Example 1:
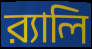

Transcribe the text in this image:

র‍্যালি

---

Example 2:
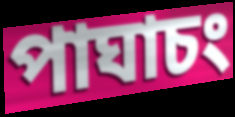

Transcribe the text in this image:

পাঘাচং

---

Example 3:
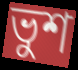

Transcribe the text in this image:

ভুশ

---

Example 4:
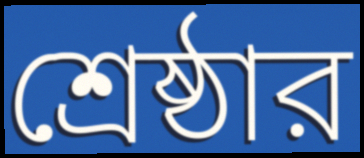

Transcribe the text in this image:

শ্রেষ্ঠার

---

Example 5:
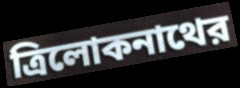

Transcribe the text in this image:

ত্রিলোকনাথের